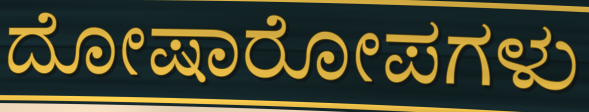
ದೋಷಾರೋಪಗಳು